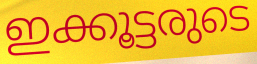
ഇക്കൂട്ടരുടെ